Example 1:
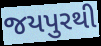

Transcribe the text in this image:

જયપુરથી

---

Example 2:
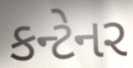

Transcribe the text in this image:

કન્ટેનર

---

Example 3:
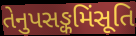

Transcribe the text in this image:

તેનુપસઙ્કમિંસૂતિ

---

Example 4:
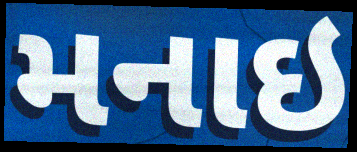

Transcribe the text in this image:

મનાઇ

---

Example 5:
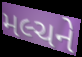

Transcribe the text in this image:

મલ્ચને